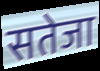
सतेजा